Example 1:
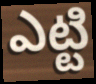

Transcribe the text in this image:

ఎట్టి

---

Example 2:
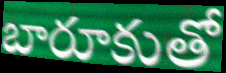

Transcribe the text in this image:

బారూకుతో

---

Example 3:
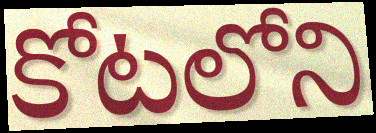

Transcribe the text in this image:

కోటలోని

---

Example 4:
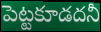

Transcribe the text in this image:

పెట్టకూడదనీ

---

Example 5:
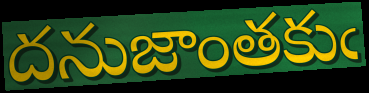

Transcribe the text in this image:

దనుజాంతకుఁ